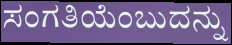
ಸಂಗತಿಯೆಂಬುದನ್ನು